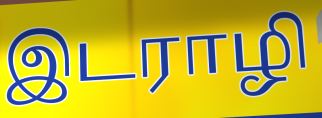
இடராழி